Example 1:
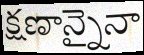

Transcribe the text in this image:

క్షణాన్నైనా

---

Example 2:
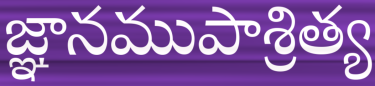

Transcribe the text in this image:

జ్ఞానముపాశ్రిత్య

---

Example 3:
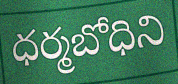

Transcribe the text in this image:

ధర్మబోధిని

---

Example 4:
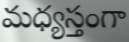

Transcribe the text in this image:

మధ్యస్తంగా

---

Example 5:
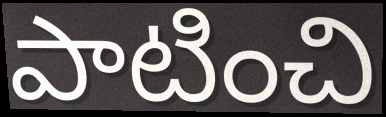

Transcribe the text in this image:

పాటించి